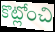
కొట్లోంచి